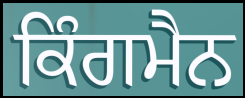
ਕਿੰਗਮੈਨ